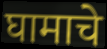
घामाचे